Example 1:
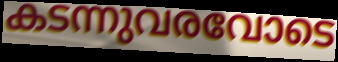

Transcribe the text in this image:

കടന്നുവരവോടെ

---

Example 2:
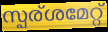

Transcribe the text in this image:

സ്പര്ശമേറ്റ്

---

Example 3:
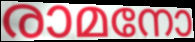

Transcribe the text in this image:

രാമനോ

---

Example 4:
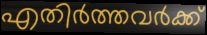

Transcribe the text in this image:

എതിർത്തവർക്ക്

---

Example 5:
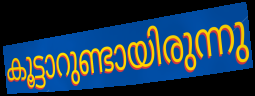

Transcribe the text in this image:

കൂട്ടാറുണ്ടായിരുന്നു